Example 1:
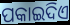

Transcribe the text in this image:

ପକାଇଦିଏ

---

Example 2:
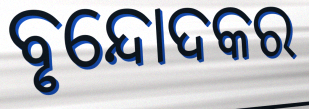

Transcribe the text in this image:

ବୃନ୍ଦୋଦକର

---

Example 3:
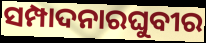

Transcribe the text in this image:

ସମ୍ପାଦନାରଘୁବୀର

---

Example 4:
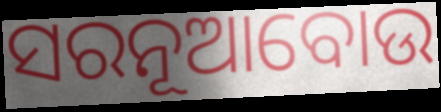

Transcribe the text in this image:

ସରନୂଆବୋଉ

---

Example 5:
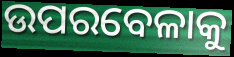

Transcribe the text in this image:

ଉପରବେଳାକୁ